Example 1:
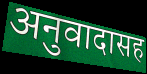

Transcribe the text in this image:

अनुवादासह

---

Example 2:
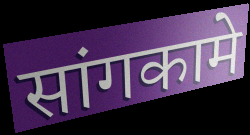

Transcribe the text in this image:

सांगकामे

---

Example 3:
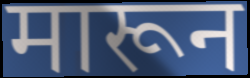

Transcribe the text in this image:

मारून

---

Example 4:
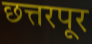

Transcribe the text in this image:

छत्तरपूर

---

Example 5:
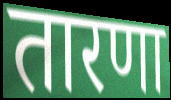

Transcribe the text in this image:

तारणा